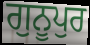
ਗੁਨੂਪੁਰ